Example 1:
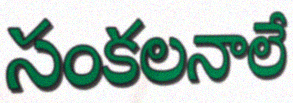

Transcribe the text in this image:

సంకలనాలే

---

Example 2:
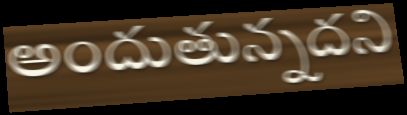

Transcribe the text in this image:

అందుతున్నదని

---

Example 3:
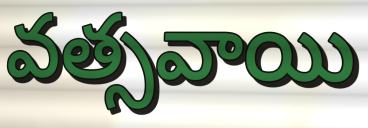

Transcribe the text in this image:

వత్సవాయి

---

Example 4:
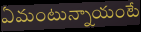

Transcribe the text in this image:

ఏమంటున్నాయంటే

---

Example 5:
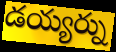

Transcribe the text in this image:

డయ్యర్ను